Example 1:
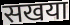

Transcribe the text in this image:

सखया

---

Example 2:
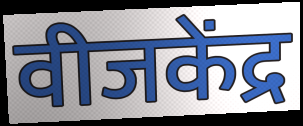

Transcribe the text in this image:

वीजकेंद्र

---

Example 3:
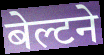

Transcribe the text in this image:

बेल्टने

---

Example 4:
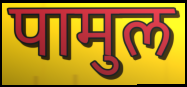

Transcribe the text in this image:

पामुल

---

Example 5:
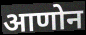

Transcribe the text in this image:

आणोन